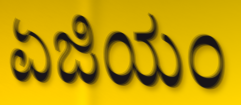
ಏಜಿಯಂ